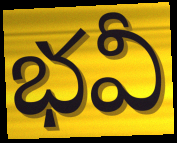
భవీ